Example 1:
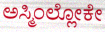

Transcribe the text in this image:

ಅಸ್ಮಿಂಲ್ಲೋಕೇ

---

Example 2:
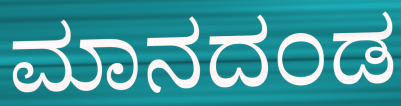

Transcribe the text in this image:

ಮಾನದಂಡ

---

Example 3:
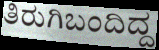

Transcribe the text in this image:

ತಿರುಗಿಬಂದಿದ್ದ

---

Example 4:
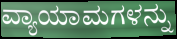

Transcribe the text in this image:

ವ್ಯಾಯಾಮಗಳನ್ನು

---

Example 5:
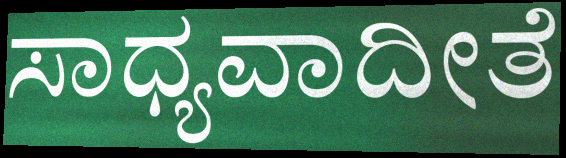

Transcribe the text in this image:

ಸಾಧ್ಯವಾದೀತೆ